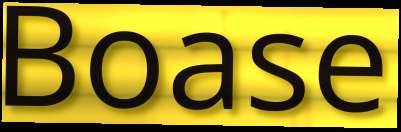
Boase